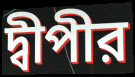
দ্বীপীর